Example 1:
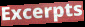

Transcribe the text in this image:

Excerpts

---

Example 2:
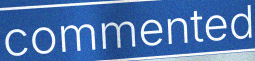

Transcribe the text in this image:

commented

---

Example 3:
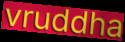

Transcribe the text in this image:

vruddha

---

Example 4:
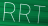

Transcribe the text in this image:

RRT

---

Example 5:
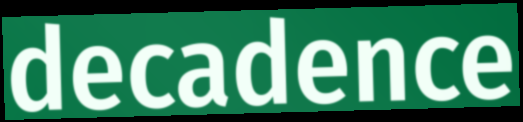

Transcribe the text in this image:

decadence